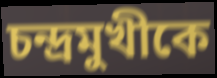
চন্দ্রমুখীকে